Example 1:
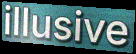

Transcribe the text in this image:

illusive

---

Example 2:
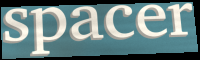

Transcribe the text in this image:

spacer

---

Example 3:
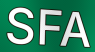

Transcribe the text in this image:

SFA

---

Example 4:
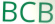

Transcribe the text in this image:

BCB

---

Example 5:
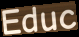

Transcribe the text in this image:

Educ